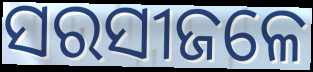
ସରସୀଜଳେ